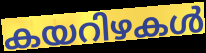
കയറിഴകൾ